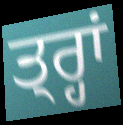
ਤ੍ਰ੍ਹਾਂ